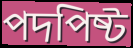
পদপিষ্ট